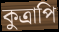
কুত্রাপি